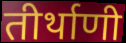
तीर्थाणी